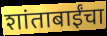
शांताबाईंचा